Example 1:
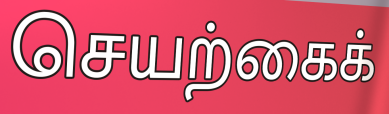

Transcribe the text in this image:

செயற்கைக்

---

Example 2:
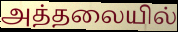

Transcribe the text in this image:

அத்தலையில்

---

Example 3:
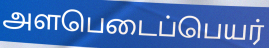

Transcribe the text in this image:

அளபெடைப்பெயர்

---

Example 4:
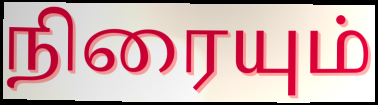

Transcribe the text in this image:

நிரையும்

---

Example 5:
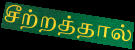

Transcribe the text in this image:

சீற்றத்தால்